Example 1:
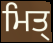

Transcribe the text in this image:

ਮਿਤ੍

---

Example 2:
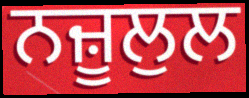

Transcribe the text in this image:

ਨਜ਼ੂਲੁਲ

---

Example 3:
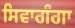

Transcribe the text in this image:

ਸਿਵਾਗੰਗਾ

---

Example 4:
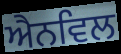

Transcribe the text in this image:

ਐਨਵਿਲ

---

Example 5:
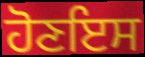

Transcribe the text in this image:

ਹੋਣਇਸ